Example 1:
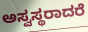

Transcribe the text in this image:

ಅಸ್ವಸ್ಥರಾದರೆ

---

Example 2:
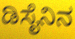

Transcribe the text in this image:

ಡಿಸೈನಿನ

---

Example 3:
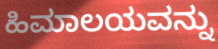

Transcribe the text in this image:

ಹಿಮಾಲಯವನ್ನು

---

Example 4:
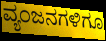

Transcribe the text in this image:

ವ್ಯಂಜನಗಳಿಗೂ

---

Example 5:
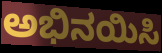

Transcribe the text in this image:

ಅಭಿನಯಿಸಿ